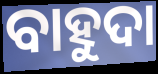
ବାହୁଦା